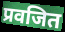
प्रवजित